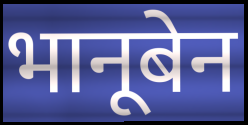
भानूबेन